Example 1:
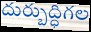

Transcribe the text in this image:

దుర్బుద్ధిగల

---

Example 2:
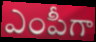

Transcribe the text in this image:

ఎంపీగా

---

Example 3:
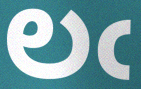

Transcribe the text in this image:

లఁ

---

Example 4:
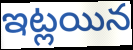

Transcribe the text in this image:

ఇట్లయిన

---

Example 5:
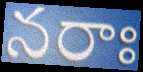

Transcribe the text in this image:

నరాః